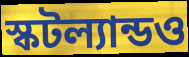
স্কটল্যান্ডও